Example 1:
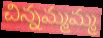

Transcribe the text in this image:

చిన్నమ్మమ్మ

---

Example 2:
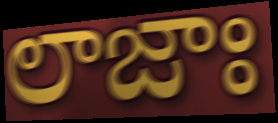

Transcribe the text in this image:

లాజాః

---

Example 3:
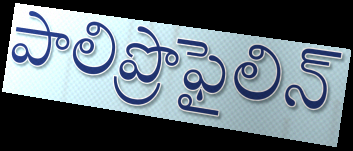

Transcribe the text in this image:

పాలిప్రొఫైలిన్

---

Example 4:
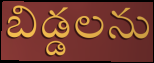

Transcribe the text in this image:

బిడ్డలను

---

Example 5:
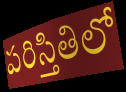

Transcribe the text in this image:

పరిస్తితిలో